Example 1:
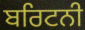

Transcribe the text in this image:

ਬਰਿਟਨੀ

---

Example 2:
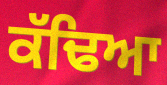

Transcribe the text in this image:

ਕੱਢਿਆ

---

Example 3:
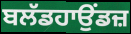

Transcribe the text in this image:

ਬਲੱਡਹਾਉਂਡਜ਼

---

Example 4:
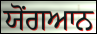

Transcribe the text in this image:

ਯੋਂਗਆਨ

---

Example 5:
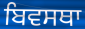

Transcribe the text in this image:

ਬਿਵਸਥਾ